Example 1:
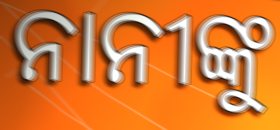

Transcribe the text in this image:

ନାନୀଙ୍କୁ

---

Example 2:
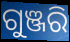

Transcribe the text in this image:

ଗୁଞ୍ଜରି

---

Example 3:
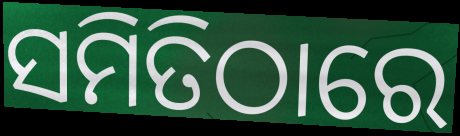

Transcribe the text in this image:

ସମିତିଠାରେ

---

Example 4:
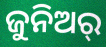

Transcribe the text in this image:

ଜୁନିଅର୍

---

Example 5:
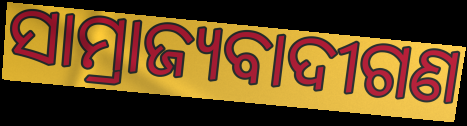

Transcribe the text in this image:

ସାମ୍ରାଜ୍ୟବାଦୀଗଣ